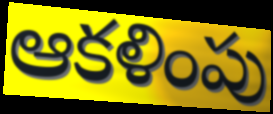
ఆకళింపు